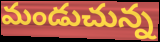
మండుచున్న